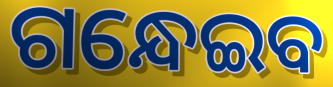
ଗନ୍ଧେଇବ